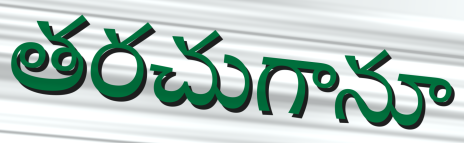
తరచుగానూ